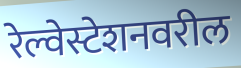
रेल्वेस्टेशनवरील